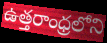
ఉత్తరాంధ్రలోని